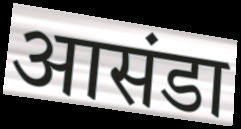
आसंडा